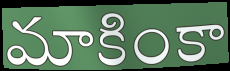
మాకింకా